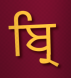
ਬ੍ਰਿ